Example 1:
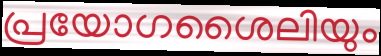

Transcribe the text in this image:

പ്രയോഗശൈലിയും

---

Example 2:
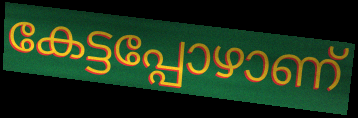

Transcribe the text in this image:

കേട്ടപ്പോഴാണ്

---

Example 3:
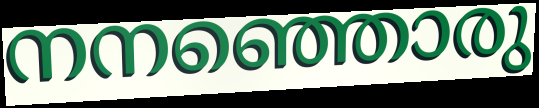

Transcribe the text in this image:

നനഞ്ഞൊരു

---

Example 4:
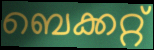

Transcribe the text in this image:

ബെക്കറ്റ്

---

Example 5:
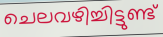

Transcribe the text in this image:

ചെലവഴിച്ചിട്ടുണ്ട്